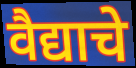
वैद्याचे